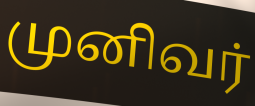
முனிவர்